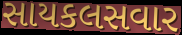
સાયકલસવાર